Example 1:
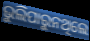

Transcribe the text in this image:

ଭୁଲିପାରୁନଥିଲେ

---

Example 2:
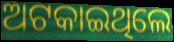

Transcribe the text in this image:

ଅଟକାଇଥିଲେ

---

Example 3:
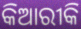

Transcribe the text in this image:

କିଆରୀକି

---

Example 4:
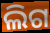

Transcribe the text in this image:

ଲିଗ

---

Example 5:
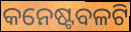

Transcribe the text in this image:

କନେଷ୍ଟବଳଟି